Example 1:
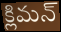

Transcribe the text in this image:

క్లిమన్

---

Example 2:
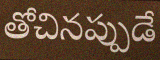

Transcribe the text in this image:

తోచినప్పుడే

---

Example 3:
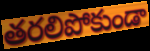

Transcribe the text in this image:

తరలిపోకుండా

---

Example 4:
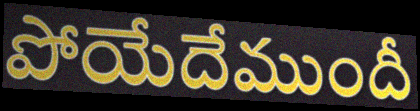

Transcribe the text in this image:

పోయేదేముందీ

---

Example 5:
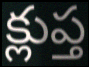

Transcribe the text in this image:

క్లుప్త